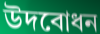
উদবোধন